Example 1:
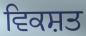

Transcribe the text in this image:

ਵਿਕਸ਼ਤ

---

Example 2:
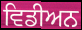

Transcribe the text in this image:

ਵਿਡੀਅਨ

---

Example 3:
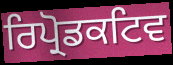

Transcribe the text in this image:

ਰਿਪ੍ਰੋਡਕਟਿਵ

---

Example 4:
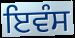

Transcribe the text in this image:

ਇਵੰਸ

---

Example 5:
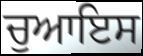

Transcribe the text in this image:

ਚੁਆਇਸ